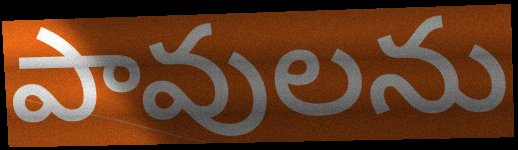
పావులను